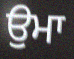
ਉਮਾ